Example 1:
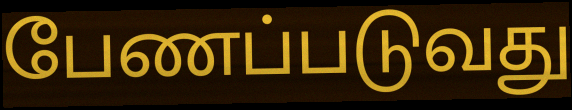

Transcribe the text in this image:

பேணப்படுவது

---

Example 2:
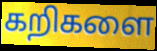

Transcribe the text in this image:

கறிகளை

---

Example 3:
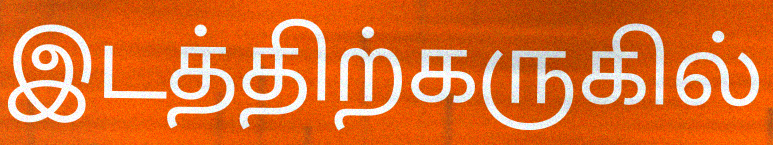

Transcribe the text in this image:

இடத்திற்கருகில்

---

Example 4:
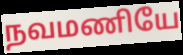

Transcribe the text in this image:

நவமணியே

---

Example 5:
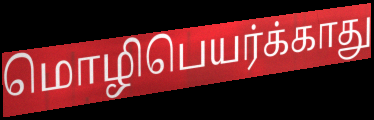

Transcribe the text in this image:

மொழிபெயர்க்காது